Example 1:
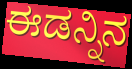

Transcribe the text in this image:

ಈಡನ್ನಿನ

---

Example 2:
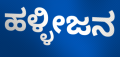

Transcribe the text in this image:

ಹಳ್ಳೀಜನ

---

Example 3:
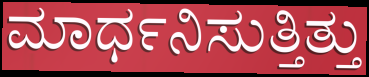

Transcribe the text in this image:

ಮಾರ್ಧನಿಸುತ್ತಿತ್ತು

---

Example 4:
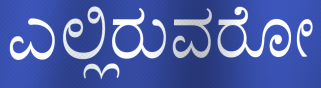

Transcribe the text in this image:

ಎಲ್ಲಿರುವರೋ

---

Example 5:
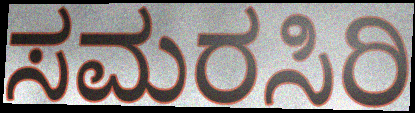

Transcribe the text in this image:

ಸಮರಸಿರಿ